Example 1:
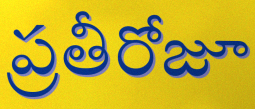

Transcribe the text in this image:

ప్రతీరోజూ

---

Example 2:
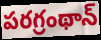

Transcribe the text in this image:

పరగ్రంథాన్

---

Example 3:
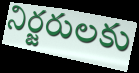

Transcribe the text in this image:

నిర్జరులకు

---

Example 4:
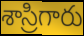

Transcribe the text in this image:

శాస్రిగారు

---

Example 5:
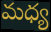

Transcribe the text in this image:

మధ్య